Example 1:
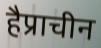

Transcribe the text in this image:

हैप्राचीन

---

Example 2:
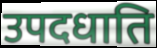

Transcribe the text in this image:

उपदधाति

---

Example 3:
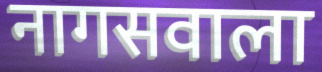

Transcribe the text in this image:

नागसवाला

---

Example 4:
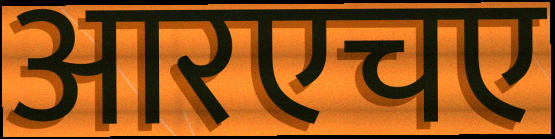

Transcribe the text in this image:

आरएचए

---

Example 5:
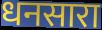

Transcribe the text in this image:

धनसारा